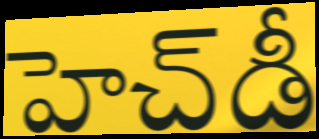
హెచ్‌డీ